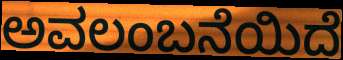
ಅವಲಂಬನೆಯಿದೆ